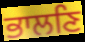
ਭਾਲਣਿ